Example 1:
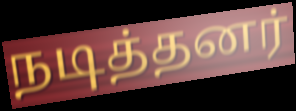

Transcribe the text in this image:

நடித்தனர்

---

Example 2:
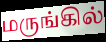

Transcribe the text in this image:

மருங்கில்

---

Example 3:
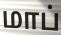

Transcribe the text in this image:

மாப்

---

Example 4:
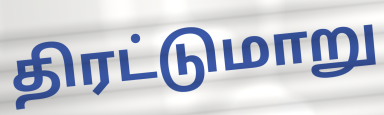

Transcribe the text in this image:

திரட்டுமாறு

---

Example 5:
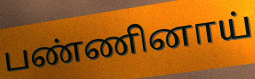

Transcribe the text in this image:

பண்ணினாய்